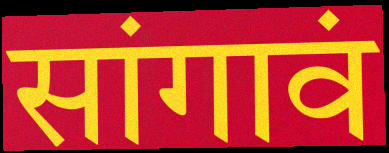
सांगावं